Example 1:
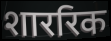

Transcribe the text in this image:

शाररिक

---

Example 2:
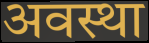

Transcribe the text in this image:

अवस्था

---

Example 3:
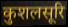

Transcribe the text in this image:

कुशलसूरि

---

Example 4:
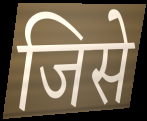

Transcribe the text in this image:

जिसे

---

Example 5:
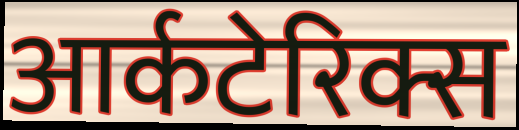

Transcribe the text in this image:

आर्कटेरिक्स